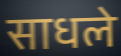
साधले